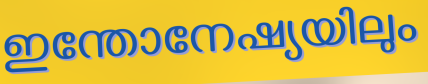
ഇന്തോനേഷ്യയിലും